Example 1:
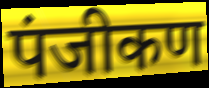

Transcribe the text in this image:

पंजीकण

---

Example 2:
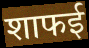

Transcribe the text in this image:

शाफई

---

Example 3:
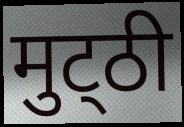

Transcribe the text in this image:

मुट्‌ठी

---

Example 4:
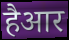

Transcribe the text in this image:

हैआर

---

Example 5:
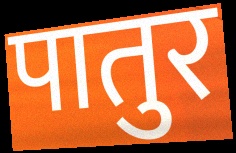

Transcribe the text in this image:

पातुर